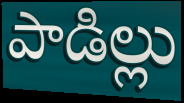
పాడిల్లు